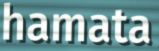
hamata